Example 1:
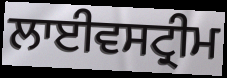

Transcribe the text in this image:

ਲਾਈਵਸਟ੍ਰੀਮ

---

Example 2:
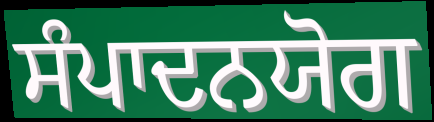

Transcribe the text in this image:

ਸੰਪਾਦਨਯੋਗ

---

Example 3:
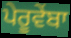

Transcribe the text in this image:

ਪੇਰੂਵੇਂਬਾ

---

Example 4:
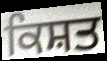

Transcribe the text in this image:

ਕਿਸ਼ਤ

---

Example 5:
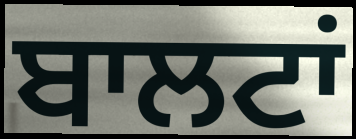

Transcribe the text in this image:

ਬਾਲਟਾਂ